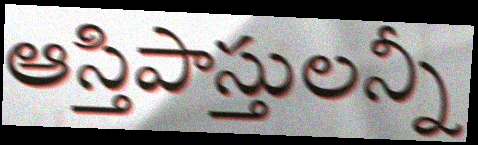
ఆస్తిపాస్తులన్నీ